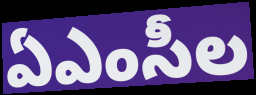
ఏఎంసీల